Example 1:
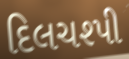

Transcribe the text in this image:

દિલચશ્પી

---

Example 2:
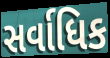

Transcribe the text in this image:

સર્વાધિક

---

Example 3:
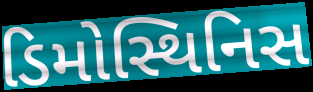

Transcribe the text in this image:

ડિમોસ્થિનિસ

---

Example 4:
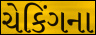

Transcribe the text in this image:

ચેકિંગના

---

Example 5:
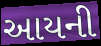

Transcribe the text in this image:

આયની